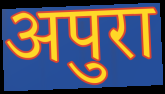
अपुरा